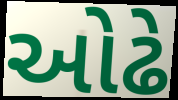
ઓઢે